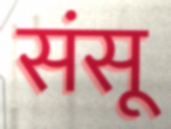
संसू